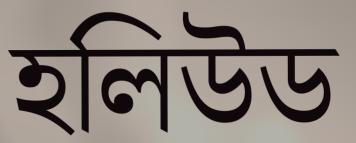
হলিউড